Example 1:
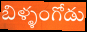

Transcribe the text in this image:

బిళ్ళంగోడు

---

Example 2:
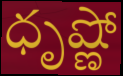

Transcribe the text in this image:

ధృష్ణో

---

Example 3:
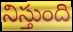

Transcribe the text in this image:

నిస్తుంది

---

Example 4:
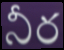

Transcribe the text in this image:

నీర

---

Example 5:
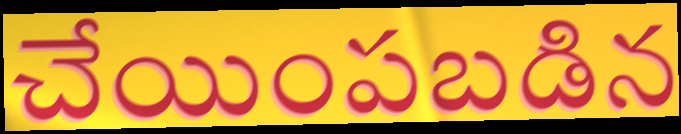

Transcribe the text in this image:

చేయింపబడిన